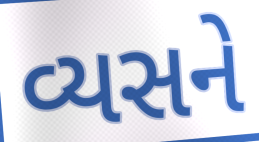
વ્યસને